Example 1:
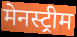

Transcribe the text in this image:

मेनस्ट्रीम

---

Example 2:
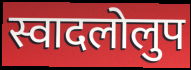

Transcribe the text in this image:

स्वादलोलुप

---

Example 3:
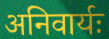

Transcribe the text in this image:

अनिवार्यः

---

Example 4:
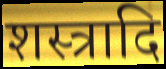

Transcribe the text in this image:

शस्त्रादि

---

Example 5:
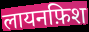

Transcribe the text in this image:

लायनफ़िश